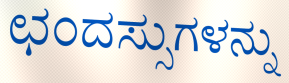
ಛಂದಸ್ಸುಗಳನ್ನು